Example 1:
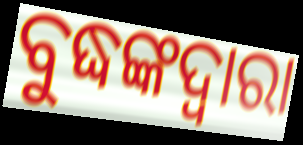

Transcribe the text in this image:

ବୁଦ୍ଧଙ୍କଦ୍ଵାରା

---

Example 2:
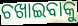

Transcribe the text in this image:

ଚଖାଇବାକୁ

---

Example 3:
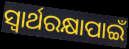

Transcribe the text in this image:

ସ୍ବାର୍ଥରକ୍ଷାପାଇଁ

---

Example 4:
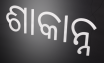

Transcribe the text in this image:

ଶାକାନ୍ନ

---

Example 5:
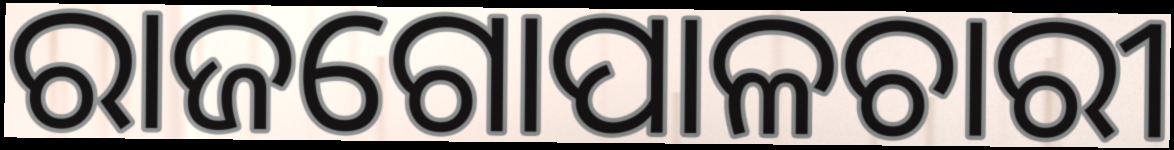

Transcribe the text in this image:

ରାଜଗୋପାଳଚାରୀ